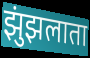
झुंझलाता